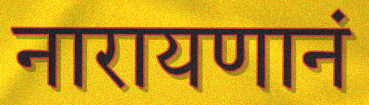
नारायणानं